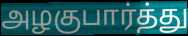
அழகுபார்த்து